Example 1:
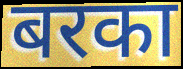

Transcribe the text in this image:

बरका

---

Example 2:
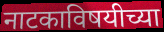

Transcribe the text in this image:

नाटकाविषयीच्या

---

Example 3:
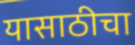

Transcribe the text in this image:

यासाठीचा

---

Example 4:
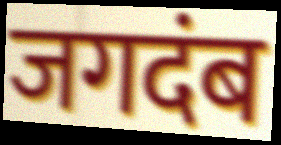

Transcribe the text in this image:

जगदंब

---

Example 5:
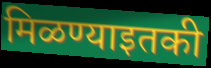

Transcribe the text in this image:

मिळण्याइतकी